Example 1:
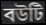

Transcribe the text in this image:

বউটি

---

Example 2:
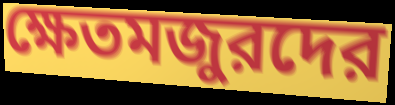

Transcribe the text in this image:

ক্ষেতমজুরদের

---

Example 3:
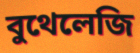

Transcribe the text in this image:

বুথেলেজি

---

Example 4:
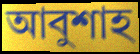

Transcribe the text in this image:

আবুশাহ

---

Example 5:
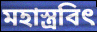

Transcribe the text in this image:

মহাস্ত্রবিৎ